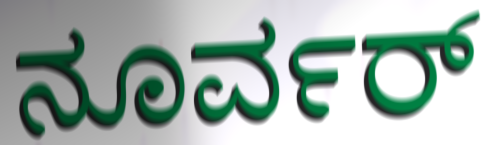
ನೂರ್ವರ್